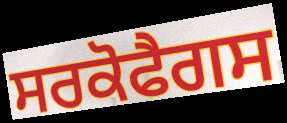
ਸਰਕੋਫੈਗਸ